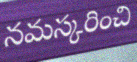
నమస్కరించి